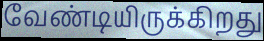
வேண்டியிருக்கிறது